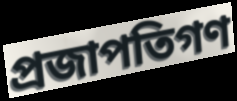
প্রজাপতিগণ